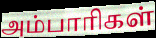
அம்பாரிகள்